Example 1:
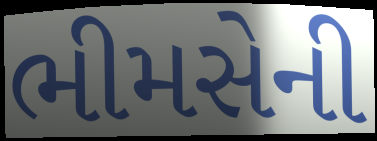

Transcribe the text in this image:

ભીમસેની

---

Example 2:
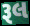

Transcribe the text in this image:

રૂલ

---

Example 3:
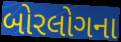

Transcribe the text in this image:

બોરલોગના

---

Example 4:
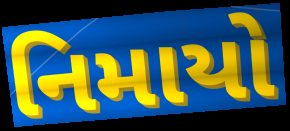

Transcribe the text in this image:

નિમાયો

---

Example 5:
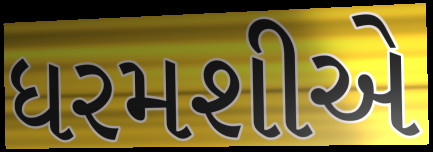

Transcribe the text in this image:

ધરમશીએ